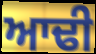
ਆਢੀ